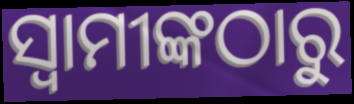
ସ୍ବାମୀଙ୍କଠାରୁ